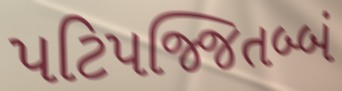
પટિપજ્જિતબ્બં